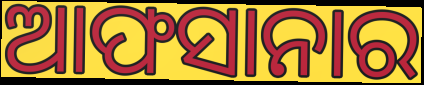
ଆଫସାନାର